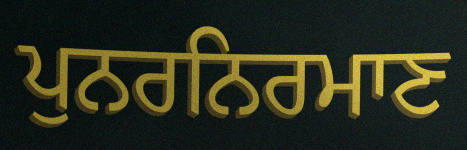
ਪੁਨਰਨਿਰਮਾਣ